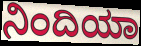
ನಿಂದಿಯಾ